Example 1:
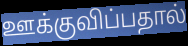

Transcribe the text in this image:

ஊக்குவிப்பதால்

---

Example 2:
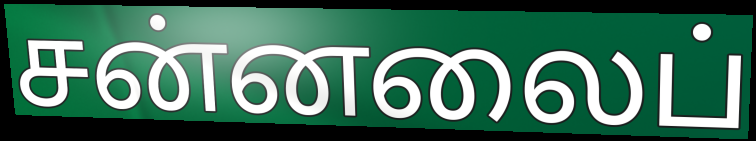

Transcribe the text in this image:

சன்னலைப்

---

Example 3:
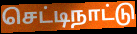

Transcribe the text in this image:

செட்டிநாட்டு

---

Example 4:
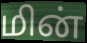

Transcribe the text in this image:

மின்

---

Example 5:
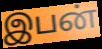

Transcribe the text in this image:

இபன்